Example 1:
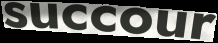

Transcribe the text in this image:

succour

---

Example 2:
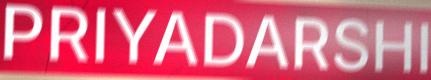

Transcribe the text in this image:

PRIYADARSHI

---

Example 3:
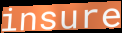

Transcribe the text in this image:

insure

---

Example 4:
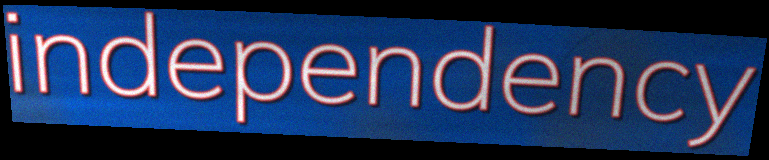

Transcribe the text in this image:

independency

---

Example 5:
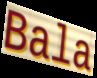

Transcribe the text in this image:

Bala